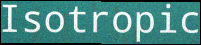
Isotropic